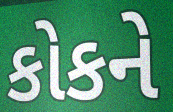
કોકને